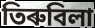
তিৰুবিলা